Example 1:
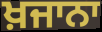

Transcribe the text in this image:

ਖ਼ਜਾਨਾ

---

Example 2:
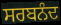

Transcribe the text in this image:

ਸਰਬਨੰਦ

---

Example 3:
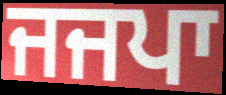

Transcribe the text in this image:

ਜਜਪਾ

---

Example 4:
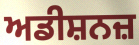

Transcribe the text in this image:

ਅਡੀਸ਼ਨਜ਼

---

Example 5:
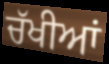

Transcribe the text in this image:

ਚੱਖੀਆਂ